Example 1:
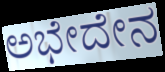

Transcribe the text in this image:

ಅಭೇದೇನ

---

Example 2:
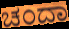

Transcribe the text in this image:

ಚಂದಾ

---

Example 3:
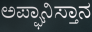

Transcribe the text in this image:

ಅಪ್ಘಾನಿಸ್ತಾನ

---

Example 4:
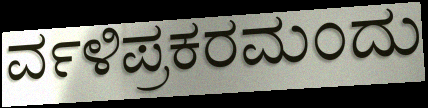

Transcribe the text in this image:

ರ್ವಳಿಪ್ರಕರಮಂದು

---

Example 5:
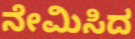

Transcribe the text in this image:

ನೇಮಿಸಿದ